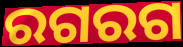
ରଗରଗ